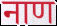
नाण